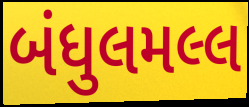
બંધુલમલ્લ